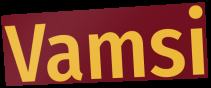
Vamsi